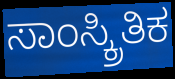
ಸಾಂಸ್ಕ್ರಿತಿಕ